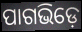
ପାଗଭିଡ଼େ